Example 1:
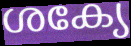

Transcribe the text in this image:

ശക്യേ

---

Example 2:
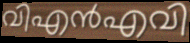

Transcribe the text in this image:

വിഎൻഎവി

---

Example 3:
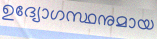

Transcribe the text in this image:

ഉദ്യോഗസ്ഥനുമായ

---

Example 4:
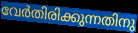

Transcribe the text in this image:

വേർതിരിക്കുന്നതിനു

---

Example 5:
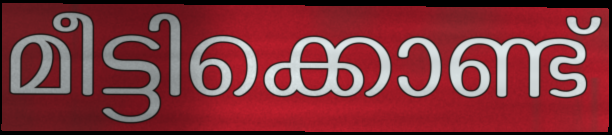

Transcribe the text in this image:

മീട്ടിക്കൊണ്ട്